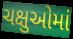
ચક્ષુઓમાં